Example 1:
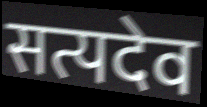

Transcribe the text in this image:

सत्यदेव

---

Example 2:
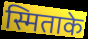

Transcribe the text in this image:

स्मिताके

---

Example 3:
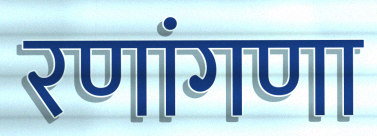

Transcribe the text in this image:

रणांगणा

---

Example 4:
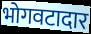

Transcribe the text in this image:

भोगवटादार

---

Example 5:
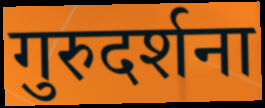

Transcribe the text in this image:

गुरुदर्शना